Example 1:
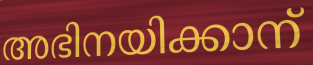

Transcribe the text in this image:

അഭിനയിക്കാന്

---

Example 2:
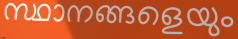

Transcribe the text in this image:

സ്ഥാനങ്ങളെയും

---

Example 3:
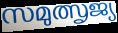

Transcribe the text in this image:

സമുത്സൃജ്യ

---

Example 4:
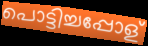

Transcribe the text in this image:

പൊട്ടിച്ചപ്പോള്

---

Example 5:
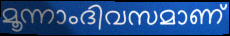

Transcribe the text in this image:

മൂന്നാംദിവസമാണ്